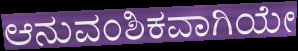
ಆನುವಂಶಿಕವಾಗಿಯೇ